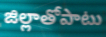
జిల్లాతోపాటు